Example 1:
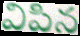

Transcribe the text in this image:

విపిన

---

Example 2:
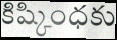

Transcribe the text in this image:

కిష్కింధకు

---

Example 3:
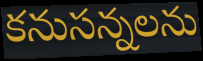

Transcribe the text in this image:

కనుసన్నలను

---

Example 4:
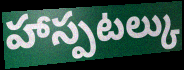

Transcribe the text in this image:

హాస్పటల్కు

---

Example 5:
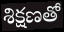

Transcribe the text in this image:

శిక్షణతో